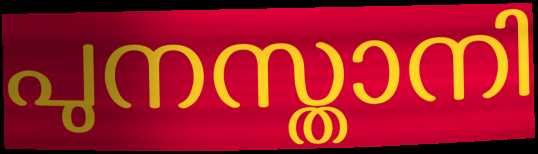
പുനസ്താനി